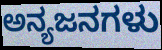
ಅನ್ಯಜನಗಳು